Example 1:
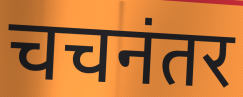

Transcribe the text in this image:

चचनंतर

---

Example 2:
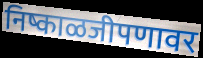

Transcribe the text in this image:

निष्काळजीपणावर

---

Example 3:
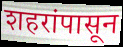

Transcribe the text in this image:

शहरांपासून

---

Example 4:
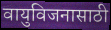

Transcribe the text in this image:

वायुविजनासाठी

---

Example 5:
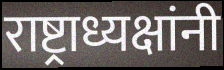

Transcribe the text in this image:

राष्ट्राध्यक्षांनी